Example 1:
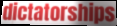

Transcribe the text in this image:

dictatorships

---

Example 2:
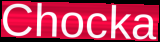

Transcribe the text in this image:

Chocka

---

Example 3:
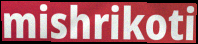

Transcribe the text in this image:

mishrikoti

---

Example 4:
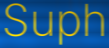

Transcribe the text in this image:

Suph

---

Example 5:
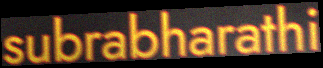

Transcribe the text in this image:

subrabharathi